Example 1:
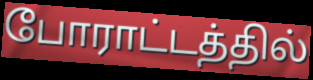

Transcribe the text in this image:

போராட்டத்தில்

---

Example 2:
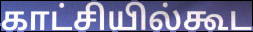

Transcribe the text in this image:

காட்சியில்கூட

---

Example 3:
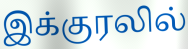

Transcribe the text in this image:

இக்குரலில்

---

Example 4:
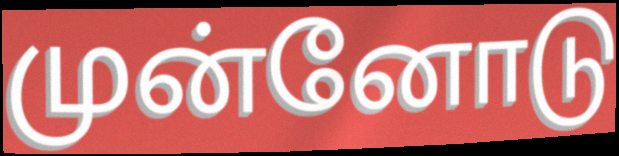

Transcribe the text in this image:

முன்னோடு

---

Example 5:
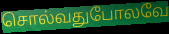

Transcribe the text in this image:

சொல்வதுபோலவே